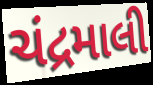
ચંદ્રમાલી